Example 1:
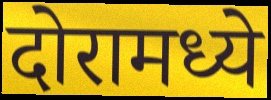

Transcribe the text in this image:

दोरामध्ये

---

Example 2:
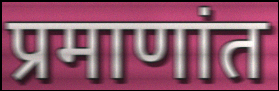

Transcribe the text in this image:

प्रमाणांत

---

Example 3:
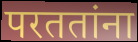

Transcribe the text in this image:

परततांना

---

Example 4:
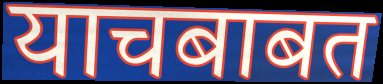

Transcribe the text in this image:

याचबाबत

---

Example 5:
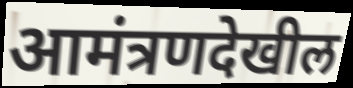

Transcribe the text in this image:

आमंत्रणदेखील